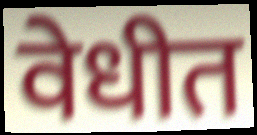
वेधीत